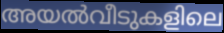
അയൽവീടുകളിലെ